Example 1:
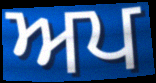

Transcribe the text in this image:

ਅਪ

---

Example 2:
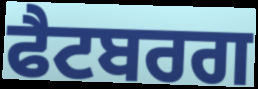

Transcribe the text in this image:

ਫੈਟਬਰਗ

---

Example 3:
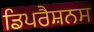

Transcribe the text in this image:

ਡਿਪਰੈਸ਼ਨਸ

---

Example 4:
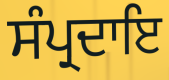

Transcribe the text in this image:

ਸੰਪ੍ਰਦਾਇ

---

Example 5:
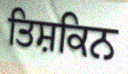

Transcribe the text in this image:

ਤਿਸ਼ਕਿਨ